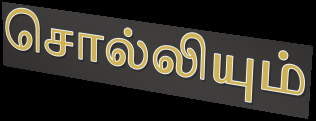
சொல்லியும்